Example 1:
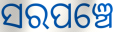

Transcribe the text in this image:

ସରପଞ୍ଚେ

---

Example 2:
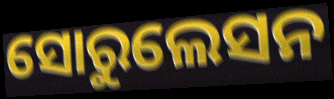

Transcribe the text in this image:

ସୋରୁଲେସନ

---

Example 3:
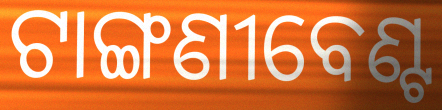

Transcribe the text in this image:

ଟାଙ୍ଗଣୀବେଣ୍ଟ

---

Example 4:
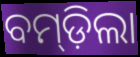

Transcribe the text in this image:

ବମ୍‍ଡ଼ିଲା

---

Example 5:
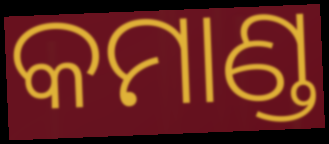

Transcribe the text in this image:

କମାଣ୍ଡ